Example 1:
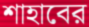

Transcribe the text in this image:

শাহাবের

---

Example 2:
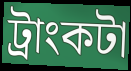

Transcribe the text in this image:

ট্রাংকটা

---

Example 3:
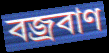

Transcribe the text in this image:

বজ্রবাণ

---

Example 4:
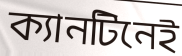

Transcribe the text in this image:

ক্যানটিনেই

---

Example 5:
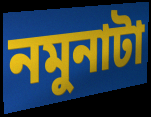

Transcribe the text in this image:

নমুনাটা